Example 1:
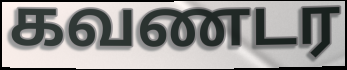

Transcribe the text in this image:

கவணடர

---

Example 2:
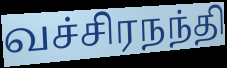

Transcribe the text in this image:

வச்சிரநந்தி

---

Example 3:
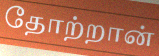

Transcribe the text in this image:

தோற்றான்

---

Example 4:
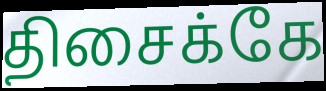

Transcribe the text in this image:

திசைக்கே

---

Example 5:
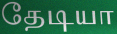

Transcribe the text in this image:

தேடியா